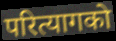
परित्यागको